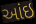
આંઇ